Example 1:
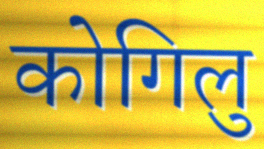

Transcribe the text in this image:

कोगिलु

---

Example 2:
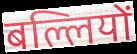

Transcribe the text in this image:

बल्लियों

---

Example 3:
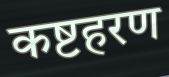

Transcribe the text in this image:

कष्टहरण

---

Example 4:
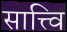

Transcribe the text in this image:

सात्त्वि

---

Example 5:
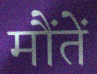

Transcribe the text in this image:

मौंतें